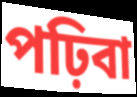
পঢ়িবা